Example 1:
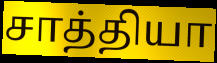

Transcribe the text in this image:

சாத்தியா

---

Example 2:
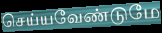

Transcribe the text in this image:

செய்யவேண்டுமே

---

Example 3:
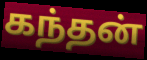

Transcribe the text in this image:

கந்தன்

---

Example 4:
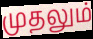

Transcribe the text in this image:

முதலும்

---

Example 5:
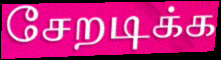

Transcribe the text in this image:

சேறடிக்க